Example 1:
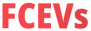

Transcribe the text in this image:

FCEVs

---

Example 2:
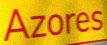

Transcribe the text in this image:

Azores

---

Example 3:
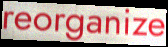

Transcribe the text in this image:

reorganize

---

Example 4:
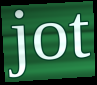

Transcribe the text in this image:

jot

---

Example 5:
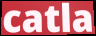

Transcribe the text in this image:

catla